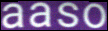
aaso